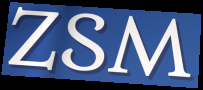
ZSM